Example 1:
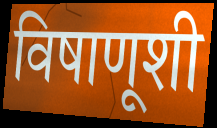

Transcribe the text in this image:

विषाणूशी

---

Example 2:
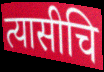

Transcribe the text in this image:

त्यासीचि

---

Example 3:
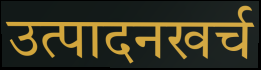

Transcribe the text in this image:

उत्पादनखर्च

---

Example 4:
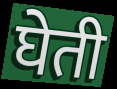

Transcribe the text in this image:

घेती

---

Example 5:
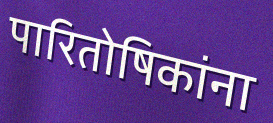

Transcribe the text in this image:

पारितोषिकांना